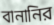
বানানির